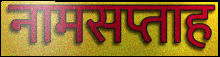
नामसप्ताह